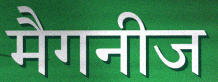
मैगनीज